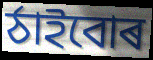
ঠাইবোৰ